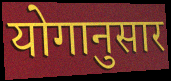
योगानुसार